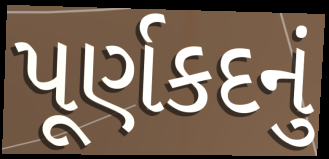
પૂર્ણકદનું